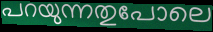
പറയുന്നതുപോലെ